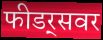
फीडर्सवर